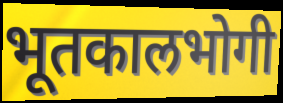
भूतकालभोगी